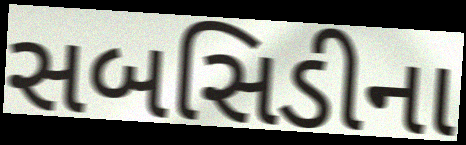
સબસિડીના